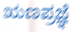
ಋಣಪ್ರಜ್ಞೆ